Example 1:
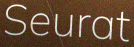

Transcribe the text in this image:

Seurat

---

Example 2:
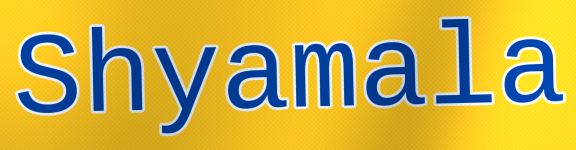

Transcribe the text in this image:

Shyamala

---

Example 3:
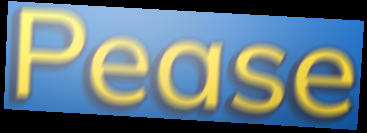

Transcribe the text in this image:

Pease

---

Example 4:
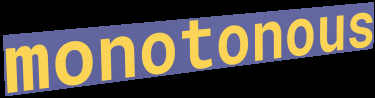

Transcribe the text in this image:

monotonous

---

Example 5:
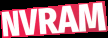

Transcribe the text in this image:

NVRAM